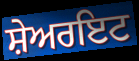
ਸ਼ੇਅਰਇਟ